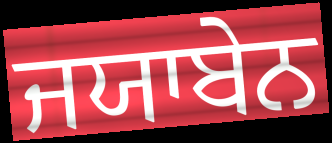
ਜਯਾਬੇਨ